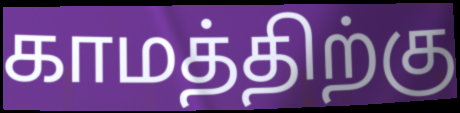
காமத்திற்கு